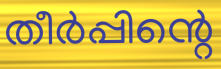
തീർപ്പിന്റെ